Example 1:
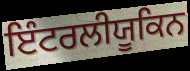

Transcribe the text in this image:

ਇੰਟਰਲੀਯੂਕਿਨ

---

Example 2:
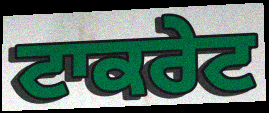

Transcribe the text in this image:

ਟਾਕਰੇਟ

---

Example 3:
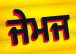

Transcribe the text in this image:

ਜੇਮਜ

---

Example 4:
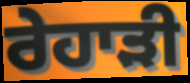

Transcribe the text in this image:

ਰੇਹਾੜੀ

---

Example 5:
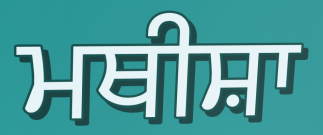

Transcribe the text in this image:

ਮਥੀਸ਼ਾ